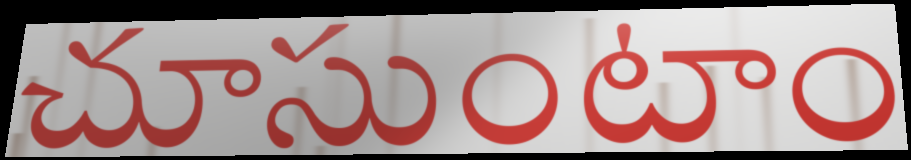
చూసుంటాం